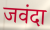
जवंदा